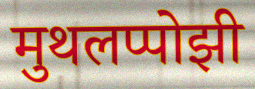
मुथलप्पोझी